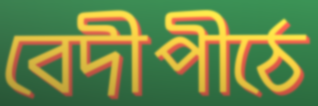
বেদীপীঠে